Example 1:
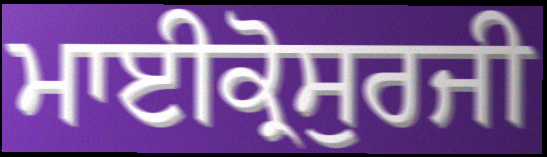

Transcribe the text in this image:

ਮਾਈਕ੍ਰੋਸੁਰਜੀ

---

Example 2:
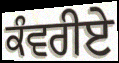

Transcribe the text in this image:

ਕੰਵਰੀਏ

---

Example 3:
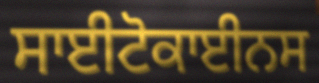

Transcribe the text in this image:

ਸਾਈਟੋਕਾਈਨਸ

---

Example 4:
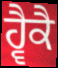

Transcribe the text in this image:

ਹ੍ਵੈਕੈ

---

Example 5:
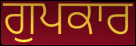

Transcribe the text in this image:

ਗੁਪਕਾਰ